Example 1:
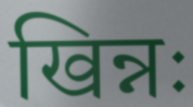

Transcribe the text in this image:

खिन्नः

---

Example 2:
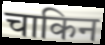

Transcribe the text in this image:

चाकिन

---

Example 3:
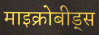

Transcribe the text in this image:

माइक्रोबीड्स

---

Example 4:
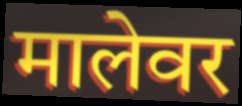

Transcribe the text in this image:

मालेवर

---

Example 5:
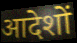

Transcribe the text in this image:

आदेशों